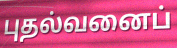
புதல்வனைப்